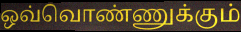
ஒவ்வொண்ணுக்கும்